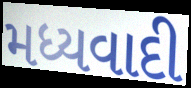
મધ્યવાદી